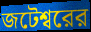
জটেশ্বরের